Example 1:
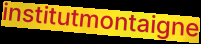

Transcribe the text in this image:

institutmontaigne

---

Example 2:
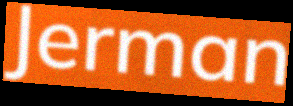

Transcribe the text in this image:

Jerman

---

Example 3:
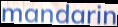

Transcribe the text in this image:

mandarin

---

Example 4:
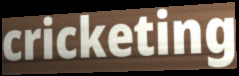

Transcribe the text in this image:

cricketing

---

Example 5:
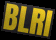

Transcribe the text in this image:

BLRI